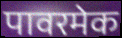
पावरमेक